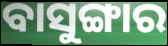
ବାସୁଙ୍ଗାର